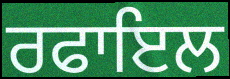
ਰਫਾਇਲ